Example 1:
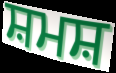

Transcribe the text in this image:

ਸ਼ਮਸ਼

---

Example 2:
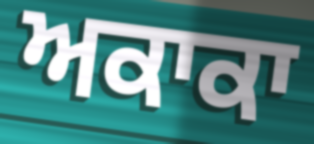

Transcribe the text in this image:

ਅਕਾਕਾ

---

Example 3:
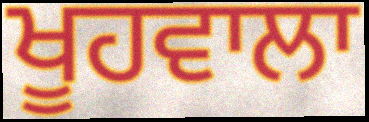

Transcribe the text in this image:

ਖੂਹਵਾਲਾ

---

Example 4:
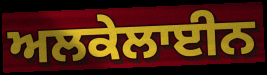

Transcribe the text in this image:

ਅਲਕੇਲਾਈਨ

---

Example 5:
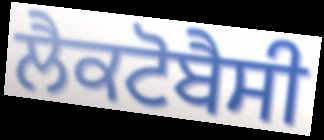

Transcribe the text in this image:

ਲੈਕਟੋਬੈਸੀ